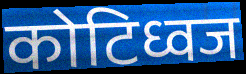
कोटिध्वज